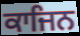
ਕਾਜਿਨ